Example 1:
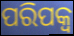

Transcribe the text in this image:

ପରିପକ୍ଵ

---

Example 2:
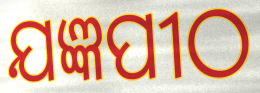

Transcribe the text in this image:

ଯଜ୍ଞପୀଠ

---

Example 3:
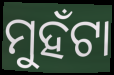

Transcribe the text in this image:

ମୁହଁଟା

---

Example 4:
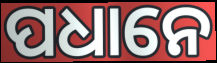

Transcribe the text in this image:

ପଧାନେ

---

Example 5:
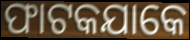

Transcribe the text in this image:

ଫାଟକଯାକେ